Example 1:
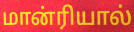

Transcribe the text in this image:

மான்ரியால்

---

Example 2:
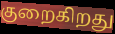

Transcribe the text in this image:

குறைகிறது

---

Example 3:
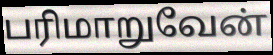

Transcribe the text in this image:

பரிமாறுவேன்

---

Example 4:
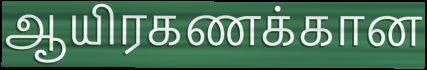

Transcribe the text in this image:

ஆயிரகணக்கான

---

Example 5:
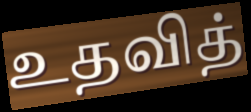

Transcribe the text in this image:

உதவித்